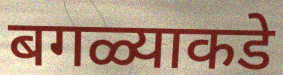
बगळ्याकडे